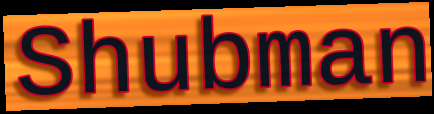
Shubman